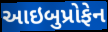
આઇબુપ્રોફેન